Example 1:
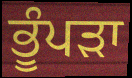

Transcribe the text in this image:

ਭੂੰਪੜਾ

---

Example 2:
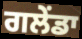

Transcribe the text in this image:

ਗਲੇਂਡਾ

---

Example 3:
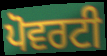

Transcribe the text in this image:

ਪੋਵਰਟੀ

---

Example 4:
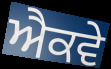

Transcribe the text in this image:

ਐਕਵੇ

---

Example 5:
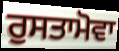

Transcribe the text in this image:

ਰੁਸਤਾਮੋਵਾ